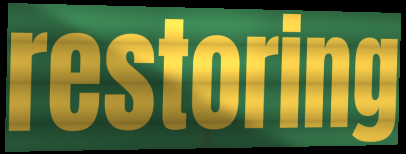
restoring